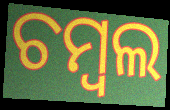
ଚମ୍ବଲ